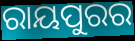
ରାୟପୁରର